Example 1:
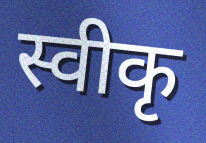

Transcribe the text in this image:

स्वीकृ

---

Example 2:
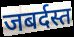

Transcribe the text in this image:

जबर्दस्त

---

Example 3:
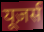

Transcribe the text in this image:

यूज़र्स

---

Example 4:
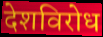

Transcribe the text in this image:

देशविरोध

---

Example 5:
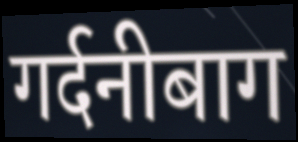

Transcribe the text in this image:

गर्दनीबाग